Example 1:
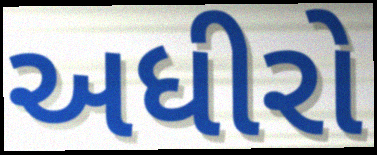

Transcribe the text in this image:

અધીરો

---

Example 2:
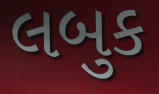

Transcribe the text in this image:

લબુક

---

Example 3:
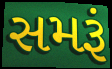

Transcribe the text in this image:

સમરૂં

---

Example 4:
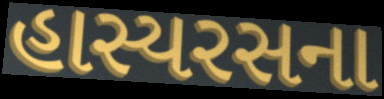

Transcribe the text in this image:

હાસ્યરસના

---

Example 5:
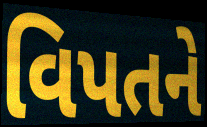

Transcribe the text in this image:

વિપતને